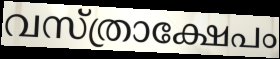
വസ്ത്രാക്ഷേപം